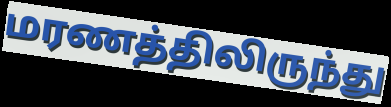
மரணத்திலிருந்து